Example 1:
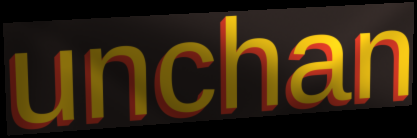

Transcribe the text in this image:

unchan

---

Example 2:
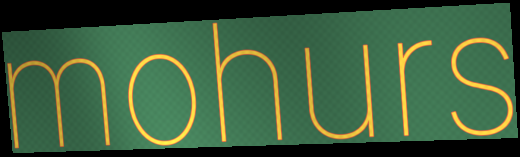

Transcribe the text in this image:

mohurs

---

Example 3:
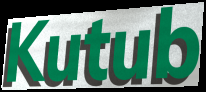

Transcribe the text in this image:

Kutub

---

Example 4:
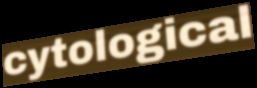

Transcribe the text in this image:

cytological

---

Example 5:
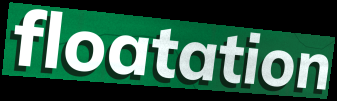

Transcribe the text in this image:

floatation